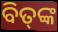
ବିତ୍‌ଙ୍କ